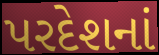
પરદેશનાં